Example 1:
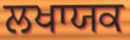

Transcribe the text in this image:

ਲਖਾਯਕ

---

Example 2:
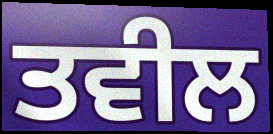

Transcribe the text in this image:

ਤਵੀਲ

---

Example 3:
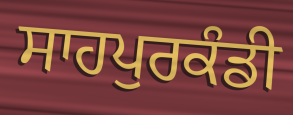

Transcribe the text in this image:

ਸਾਹਪੁਰਕੰਡੀ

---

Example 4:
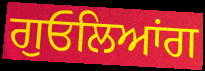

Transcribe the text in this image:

ਗੁਓਲਿਆਂਗ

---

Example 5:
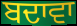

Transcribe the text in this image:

ਬਦਾਵਾ